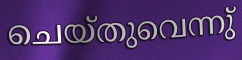
ചെയ്തുവെന്നു്